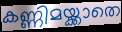
കണ്ണിമയ്ക്കാതെ